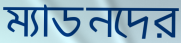
ম্যাডনদের